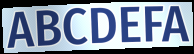
ABCDEFA